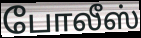
போலீஸ்